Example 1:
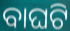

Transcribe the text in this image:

ବାଘଟି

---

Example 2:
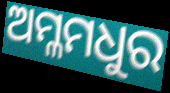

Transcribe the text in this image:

ଅମ୍ଳମଧୁର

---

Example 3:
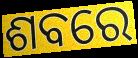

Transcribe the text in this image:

ଶବରେ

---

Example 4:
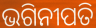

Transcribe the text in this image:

ଭଗିନୀପତି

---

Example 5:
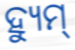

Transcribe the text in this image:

ହ୍ୟୁମ୍